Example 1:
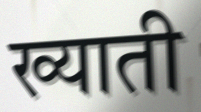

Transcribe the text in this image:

ख्याती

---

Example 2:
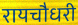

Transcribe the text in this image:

रायचौधरी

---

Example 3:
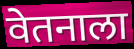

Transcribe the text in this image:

वेतनाला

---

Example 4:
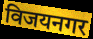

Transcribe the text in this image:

विजयनगर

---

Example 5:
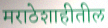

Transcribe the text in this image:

मराठेशाहीतील